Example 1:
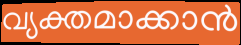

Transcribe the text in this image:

വ്യക്തമാക്കാൻ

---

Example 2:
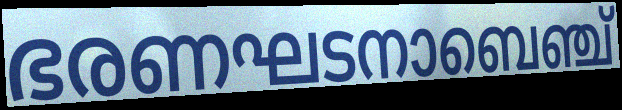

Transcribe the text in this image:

ഭരണഘടനാബെഞ്ച്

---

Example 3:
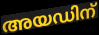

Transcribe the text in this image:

അയഡിന്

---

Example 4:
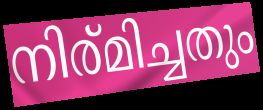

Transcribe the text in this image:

നിര്മിച്ചതും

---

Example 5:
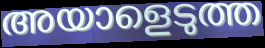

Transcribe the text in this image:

അയാളെടുത്ത